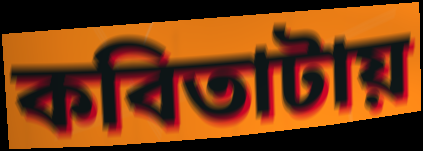
কবিতাটায়